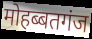
मोहब्बतगंज